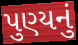
પુણ્યનું